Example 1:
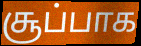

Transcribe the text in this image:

சூப்பாக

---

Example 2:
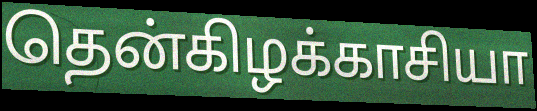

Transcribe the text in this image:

தென்கிழக்காசியா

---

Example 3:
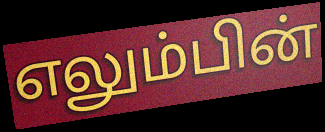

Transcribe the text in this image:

எலும்பின்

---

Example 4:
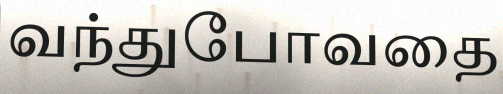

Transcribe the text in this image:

வந்துபோவதை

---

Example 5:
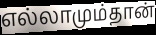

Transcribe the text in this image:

எல்லாமும்தான்